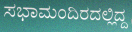
ಸಭಾಮಂದಿರದಲ್ಲಿದ್ದ